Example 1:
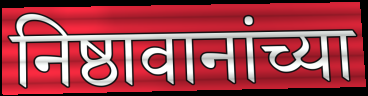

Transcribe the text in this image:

निष्ठावानांच्या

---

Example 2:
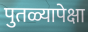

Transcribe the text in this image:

पुतळ्यापेक्षा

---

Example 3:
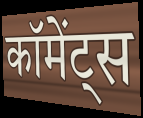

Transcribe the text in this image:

कॉमेंट्स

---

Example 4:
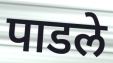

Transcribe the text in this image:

पाडले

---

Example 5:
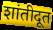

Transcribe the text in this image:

शांतीदूत